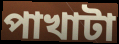
পাখাটা